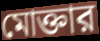
মোক্তার